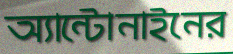
অ্যান্টোনাইনের